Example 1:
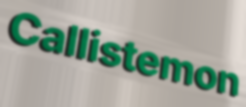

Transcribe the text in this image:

Callistemon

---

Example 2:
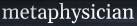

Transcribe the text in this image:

metaphysician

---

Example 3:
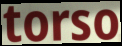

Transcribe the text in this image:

torso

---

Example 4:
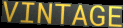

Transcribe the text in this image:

VINTAGE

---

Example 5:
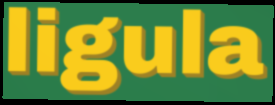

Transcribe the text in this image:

ligula